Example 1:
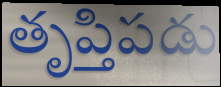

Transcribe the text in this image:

తృప్తిపడు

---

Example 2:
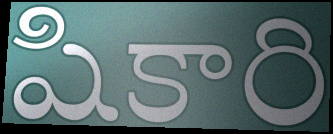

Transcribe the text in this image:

షికారి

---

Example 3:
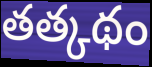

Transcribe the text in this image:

తత్కథం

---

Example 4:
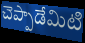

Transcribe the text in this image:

చెప్పాడేమిటి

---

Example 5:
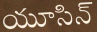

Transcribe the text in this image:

యూసిన్